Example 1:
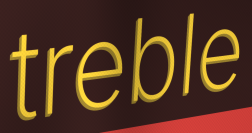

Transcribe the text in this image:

treble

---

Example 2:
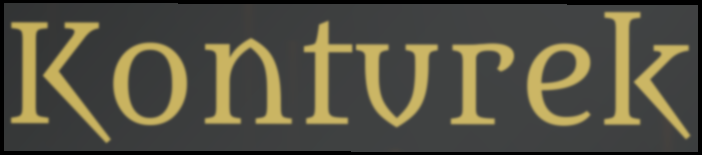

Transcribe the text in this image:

Konturek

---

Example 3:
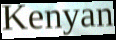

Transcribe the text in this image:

Kenyan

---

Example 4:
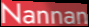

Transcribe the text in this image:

Nannan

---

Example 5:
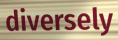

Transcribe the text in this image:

diversely